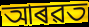
আৰৱত